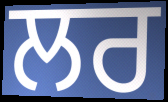
ਲਰ